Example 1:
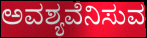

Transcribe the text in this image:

ಅವಶ್ಯವೆನಿಸುವ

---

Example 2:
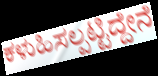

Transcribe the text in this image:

ಕಳುಹಿಸಲ್ಪಟ್ಟಿದ್ದೇನೆ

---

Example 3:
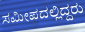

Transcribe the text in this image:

ಸಮೀಪದಲ್ಲಿದ್ದರು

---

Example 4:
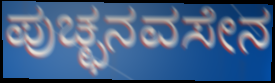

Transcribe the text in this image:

ಪುಚ್ಛನವಸೇನ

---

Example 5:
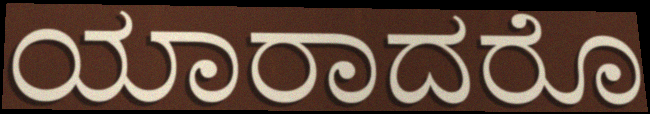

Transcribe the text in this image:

ಯಾರಾದರೊ